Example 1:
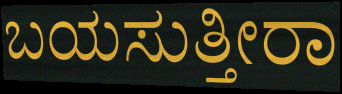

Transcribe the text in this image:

ಬಯಸುತ್ತೀರಾ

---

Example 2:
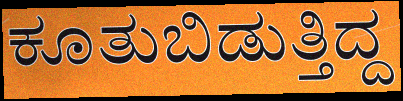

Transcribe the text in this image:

ಕೂತುಬಿಡುತ್ತಿದ್ದ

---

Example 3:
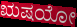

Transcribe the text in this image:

ಋಷಯೋ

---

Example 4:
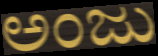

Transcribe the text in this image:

ಅಂಜು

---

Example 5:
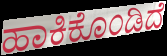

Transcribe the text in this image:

ಹಾಕಿಕೊಂಡಿದೆ